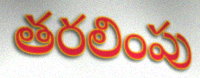
తరలింపు